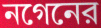
নগেনের